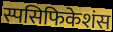
स्पसिफिकेशंस